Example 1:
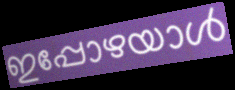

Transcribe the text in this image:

ഇപ്പോഴയാൾ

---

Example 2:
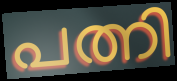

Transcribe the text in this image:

പത്നി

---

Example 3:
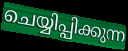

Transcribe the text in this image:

ചെയ്യിപ്പിക്കുന്ന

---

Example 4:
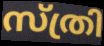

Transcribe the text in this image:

സ്ത്രി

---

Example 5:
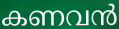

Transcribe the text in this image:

കണവൻ